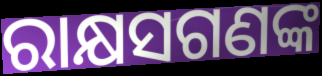
ରାକ୍ଷସଗଣଙ୍କ